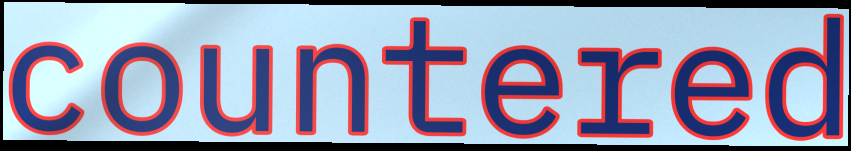
countered